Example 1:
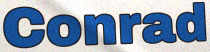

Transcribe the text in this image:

Conrad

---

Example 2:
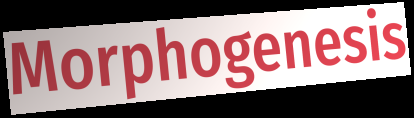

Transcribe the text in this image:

Morphogenesis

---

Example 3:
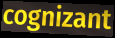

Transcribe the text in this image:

cognizant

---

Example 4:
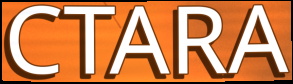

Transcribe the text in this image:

CTARA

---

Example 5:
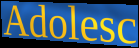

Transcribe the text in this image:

Adolesc